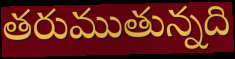
తరుముతున్నది